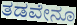
ತಡವೇನೂ